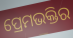
ପ୍ରେମଭକ୍ତିର